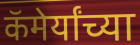
कॅमेर्यांच्या